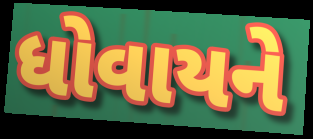
ધોવાયને